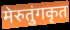
मेरुतुंगकृत